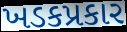
ખડકપ્રકાર